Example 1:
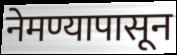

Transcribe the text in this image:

नेमण्यापासून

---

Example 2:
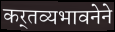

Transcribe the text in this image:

कर्तव्यभावनेने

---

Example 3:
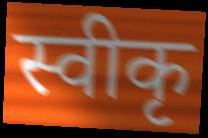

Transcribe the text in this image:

स्वीकृ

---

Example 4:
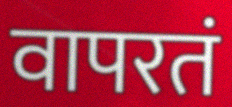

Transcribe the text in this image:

वापरतं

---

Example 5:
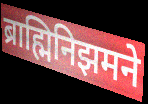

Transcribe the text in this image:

ब्राह्मिनिझमने